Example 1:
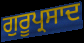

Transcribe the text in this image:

ਗੁਰੂਪ੍ਰਸਾਦ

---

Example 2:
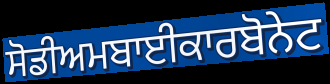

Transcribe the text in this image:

ਸੋਡੀਅਮਬਾਈਕਾਰਬੋਨੇਟ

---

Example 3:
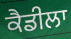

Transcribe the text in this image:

ਕੈਡੀਲਾ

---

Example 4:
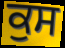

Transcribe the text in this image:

ਕੁਸ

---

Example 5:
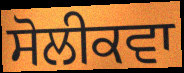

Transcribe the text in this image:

ਸੋਲੀਕਵਾ